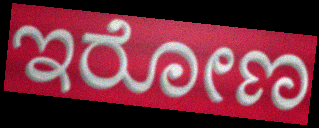
ಇರೋಣ